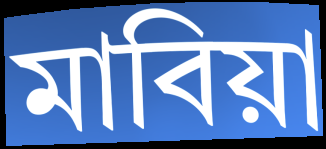
মাবিয়া